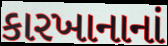
કારખાનાનાં